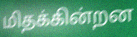
மிதக்கின்றன